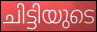
ചിട്ടിയുടെ